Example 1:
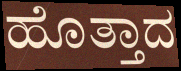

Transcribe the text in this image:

ಹೊತ್ತಾದ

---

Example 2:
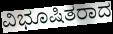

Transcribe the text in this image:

ವಿಭೂಷಿತರಾದ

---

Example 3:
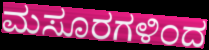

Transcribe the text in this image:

ಮಸೂರಗಳಿಂದ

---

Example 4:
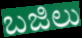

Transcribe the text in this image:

ಬಜಿಲು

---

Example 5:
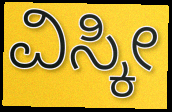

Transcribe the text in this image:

ವಿಸ್ಕೀ